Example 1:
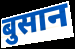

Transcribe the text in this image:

बुसान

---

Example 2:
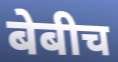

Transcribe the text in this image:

बेबीच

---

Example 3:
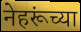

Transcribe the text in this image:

नेहरूंच्या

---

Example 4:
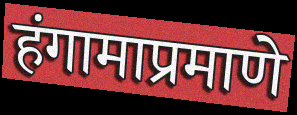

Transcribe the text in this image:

हंगामाप्रमाणे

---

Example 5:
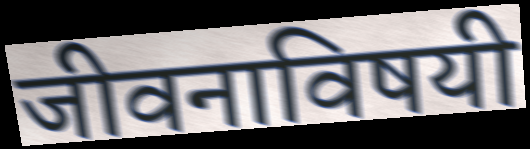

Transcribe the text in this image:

जीवनाविषयी